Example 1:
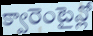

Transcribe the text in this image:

క్వారెంటైన్లో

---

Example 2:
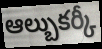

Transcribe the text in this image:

ఆల్బుకర్కీ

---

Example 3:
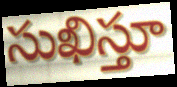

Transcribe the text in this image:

సుఖిస్తూ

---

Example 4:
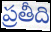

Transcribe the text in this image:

ప్రతీది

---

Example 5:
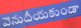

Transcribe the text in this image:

వెనుదీయకుండా